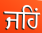
ਜਹਿਂ